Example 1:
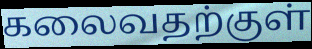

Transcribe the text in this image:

கலைவதற்குள்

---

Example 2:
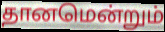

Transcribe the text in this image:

தானமென்றும்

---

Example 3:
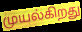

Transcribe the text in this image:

முயல்கிறது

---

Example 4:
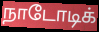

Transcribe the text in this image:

நாடோடிக்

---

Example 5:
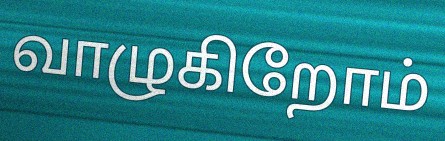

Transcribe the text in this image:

வாழுகிறோம்